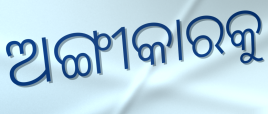
ଅଙ୍ଗୀକାରକୁ